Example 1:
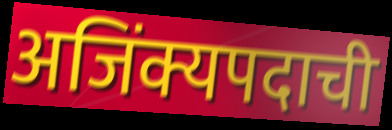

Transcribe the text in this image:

अजिंक्यपदाची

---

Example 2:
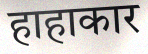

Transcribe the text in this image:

हाहाकार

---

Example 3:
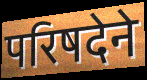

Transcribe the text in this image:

परिषदेने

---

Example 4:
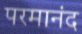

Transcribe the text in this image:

परमानंद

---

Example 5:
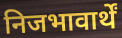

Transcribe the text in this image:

निजभावार्थें